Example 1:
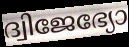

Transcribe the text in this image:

ദ്വിജേഭ്യോ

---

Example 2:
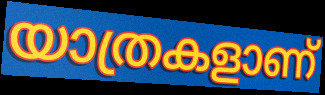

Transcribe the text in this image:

യാത്രകളാണ്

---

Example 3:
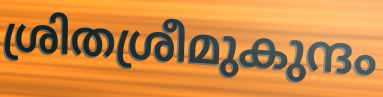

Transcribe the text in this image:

ശ്രിതശ്രീമുകുന്ദം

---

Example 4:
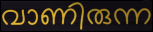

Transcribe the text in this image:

വാണിരുന്ന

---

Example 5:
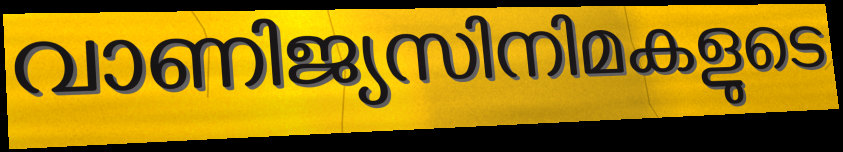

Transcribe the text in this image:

വാണിജ്യസിനിമകളുടെ